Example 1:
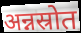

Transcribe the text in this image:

अन्नस्रोत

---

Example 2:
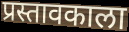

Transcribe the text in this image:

प्रस्तावकाला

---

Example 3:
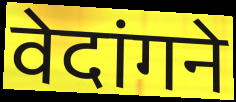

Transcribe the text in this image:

वेदांगने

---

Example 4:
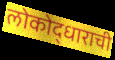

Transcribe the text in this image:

लोकोद्धाराची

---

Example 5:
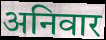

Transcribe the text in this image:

अनिवार